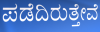
ಪಡೆದಿರುತ್ತೇವೆ